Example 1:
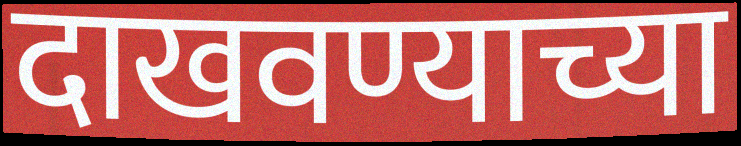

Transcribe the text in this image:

दाखवण्याच्या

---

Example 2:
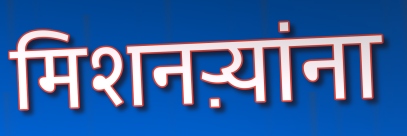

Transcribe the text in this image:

मिशनऱ्‍यांना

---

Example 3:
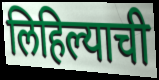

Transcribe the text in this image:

लिहिल्याची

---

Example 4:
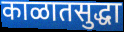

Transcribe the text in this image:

काळातसुद्धा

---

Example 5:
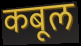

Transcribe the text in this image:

कबूल